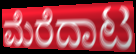
ಮೆರೆದಾಟ